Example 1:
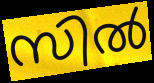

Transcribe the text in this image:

സിൽ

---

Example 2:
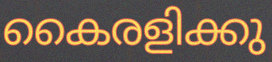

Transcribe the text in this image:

കൈരളിക്കു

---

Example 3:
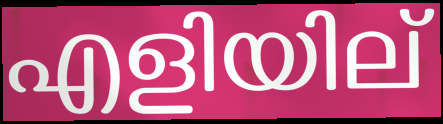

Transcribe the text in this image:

എളിയില്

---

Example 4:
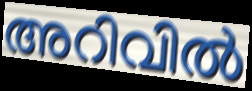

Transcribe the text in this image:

അറിവിൽ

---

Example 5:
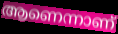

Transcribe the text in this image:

ആണെന്നാണ്